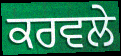
ਕਰਵਲੇ